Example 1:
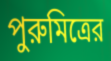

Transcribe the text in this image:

পুরুমিত্রের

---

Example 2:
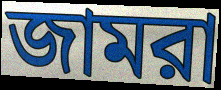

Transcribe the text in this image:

জামরা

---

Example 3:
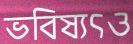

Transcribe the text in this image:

ভবিষ্যৎও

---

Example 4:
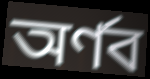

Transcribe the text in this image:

অর্ণব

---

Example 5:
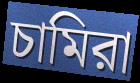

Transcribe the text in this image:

চামিরা